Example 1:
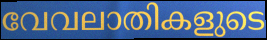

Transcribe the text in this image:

വേവലാതികളുടെ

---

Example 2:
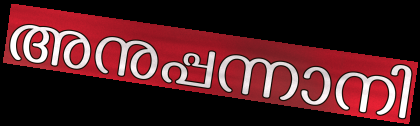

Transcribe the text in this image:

അനുപ്പന്നാനി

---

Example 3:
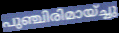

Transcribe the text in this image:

പുഞ്ചിരിമായ്ച്ചു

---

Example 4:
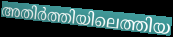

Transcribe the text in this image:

അതിർത്തിയിലെത്തിയ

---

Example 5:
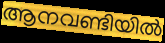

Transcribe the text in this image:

ആനവണ്ടിയിൽ